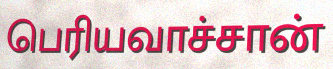
பெரியவாச்சான்